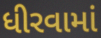
ધીરવામાં